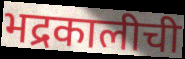
भद्रकालीची